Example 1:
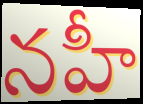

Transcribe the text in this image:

నహీ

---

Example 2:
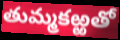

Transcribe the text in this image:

తుమ్మకఱ్ఱతో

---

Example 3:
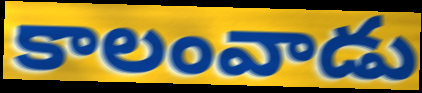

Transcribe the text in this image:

కాలంవాడు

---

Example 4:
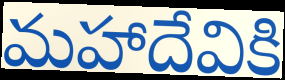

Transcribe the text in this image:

మహాదేవికి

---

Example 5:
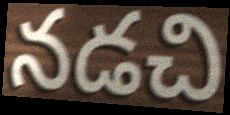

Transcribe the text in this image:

నడచి